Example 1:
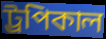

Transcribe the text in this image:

ট্রপিকাল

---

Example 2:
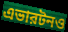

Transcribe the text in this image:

এভারটনও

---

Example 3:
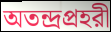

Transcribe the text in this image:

অতন্দ্রপ্রহরী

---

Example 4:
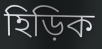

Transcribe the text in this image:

হিড়িক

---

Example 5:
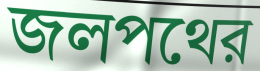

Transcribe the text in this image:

জলপথের